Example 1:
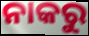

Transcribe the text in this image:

ନାକରୁ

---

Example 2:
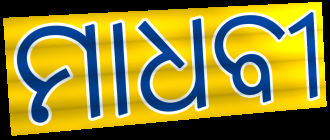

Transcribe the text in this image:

ମାଧବୀ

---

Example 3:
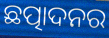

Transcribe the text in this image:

ଛତ୍ପାଦନର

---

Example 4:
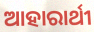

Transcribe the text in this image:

ଆହାରାର୍ଥୀ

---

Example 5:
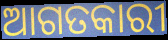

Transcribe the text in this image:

ଆଗତକାରୀ